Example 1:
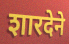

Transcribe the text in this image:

शारदेने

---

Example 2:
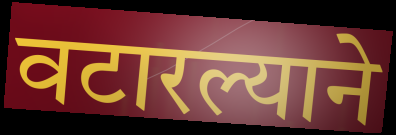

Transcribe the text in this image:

वटारल्याने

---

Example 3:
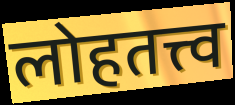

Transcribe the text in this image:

लोहतत्त्व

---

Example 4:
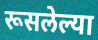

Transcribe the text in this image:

रूसलेल्या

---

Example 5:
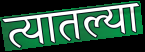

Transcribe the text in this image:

त्यातल्या